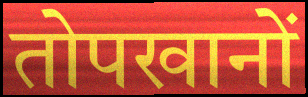
तोपखानों